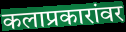
कलाप्रकारांवर